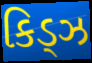
કિડ્ઝ